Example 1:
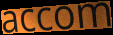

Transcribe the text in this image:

accom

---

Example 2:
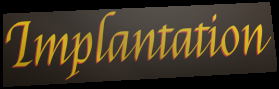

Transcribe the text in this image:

Implantation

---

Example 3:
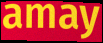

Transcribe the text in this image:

amay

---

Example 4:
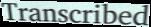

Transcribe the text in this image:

Transcribed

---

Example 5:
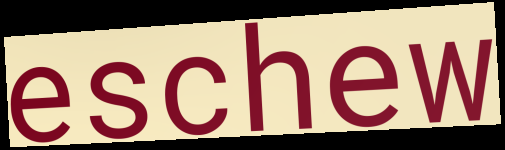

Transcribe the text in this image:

eschew